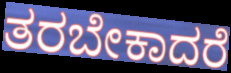
ತರಬೇಕಾದರೆ